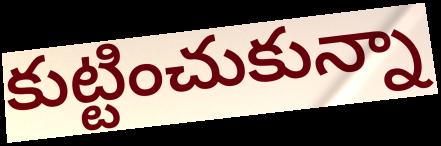
కుట్టించుకున్నా